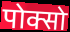
पोक्सो